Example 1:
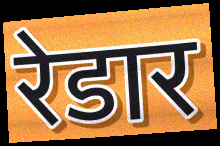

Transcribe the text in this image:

रेडार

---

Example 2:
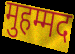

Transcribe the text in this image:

मुहम्मद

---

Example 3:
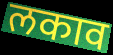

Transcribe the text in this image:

लकाव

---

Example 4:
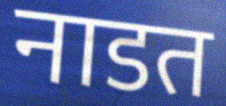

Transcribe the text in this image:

नाडत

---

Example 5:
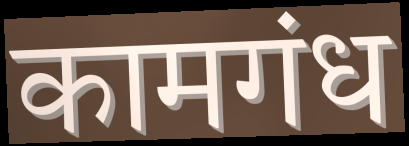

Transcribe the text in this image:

कामगंध